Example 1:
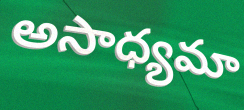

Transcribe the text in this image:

అసాధ్యమా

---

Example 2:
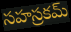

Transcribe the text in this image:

సహస్రకమ్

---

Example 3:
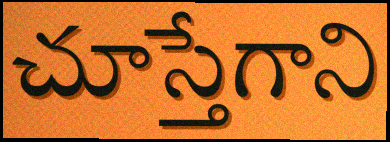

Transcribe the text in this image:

చూస్తేగాని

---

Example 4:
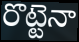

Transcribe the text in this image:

రొట్టెనా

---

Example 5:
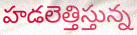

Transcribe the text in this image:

హడలెత్తిస్తున్న